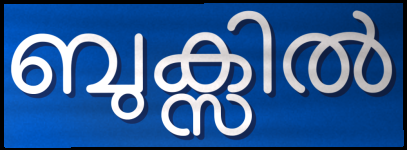
ബുക്സിൽ